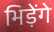
भिड़ेंगे